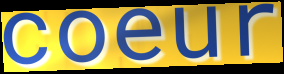
coeur